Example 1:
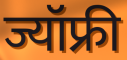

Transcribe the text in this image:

ज्यॉफ्री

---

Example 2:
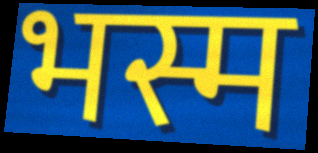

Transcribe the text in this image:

भस्म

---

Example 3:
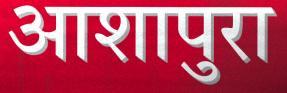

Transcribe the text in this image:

आशापुरा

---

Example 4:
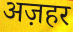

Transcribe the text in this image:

अज़हर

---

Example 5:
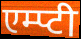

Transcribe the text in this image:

एम्प्टी